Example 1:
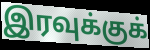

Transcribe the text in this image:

இரவுக்குக்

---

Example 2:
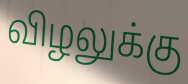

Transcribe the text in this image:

விழலுக்கு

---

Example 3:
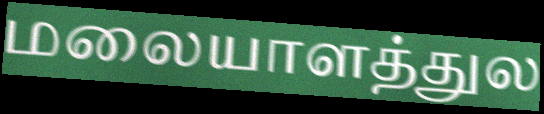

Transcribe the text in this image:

மலையாளத்துல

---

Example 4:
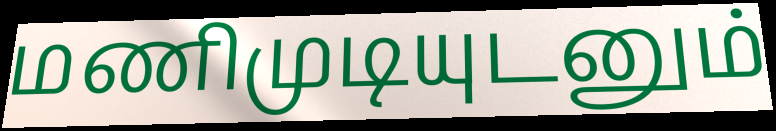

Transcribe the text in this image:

மணிமுடியுடனும்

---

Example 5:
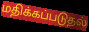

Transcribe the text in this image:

மதிக்கப்படுதல்